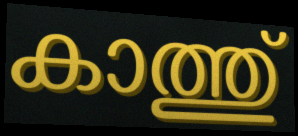
കാത്തു്